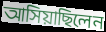
আসিয়াছিলেন